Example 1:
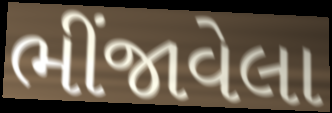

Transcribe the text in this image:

ભીંજાવેલા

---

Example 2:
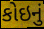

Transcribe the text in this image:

કોઇનું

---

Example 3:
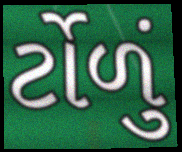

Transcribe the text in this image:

ર્ટોળું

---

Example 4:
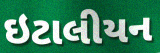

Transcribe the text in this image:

ઇટાલીયન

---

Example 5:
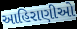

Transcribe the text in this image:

આહિરાણીઓ